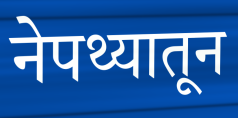
नेपथ्यातून